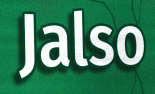
Jalso